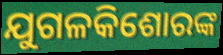
ଯୁଗଳକିଶୋରଙ୍କ